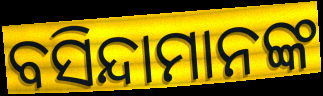
ବସିନ୍ଦାମାନଙ୍କ